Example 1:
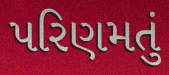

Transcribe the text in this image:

પરિણમતું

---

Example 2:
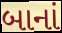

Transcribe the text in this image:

બાનાં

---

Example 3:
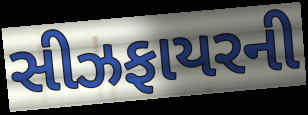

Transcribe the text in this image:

સીઝફાયરની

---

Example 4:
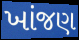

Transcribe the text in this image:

ખાંજણ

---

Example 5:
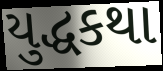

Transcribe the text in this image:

યુદ્ધકથા